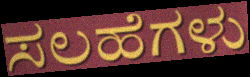
ಸಲಹೆಗಳು